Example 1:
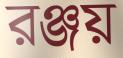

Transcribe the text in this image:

রঞ্জয়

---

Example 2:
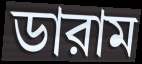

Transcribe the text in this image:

ডারাম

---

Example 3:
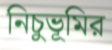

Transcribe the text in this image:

নিচুভূমির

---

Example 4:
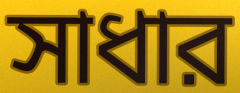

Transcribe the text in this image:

সাধার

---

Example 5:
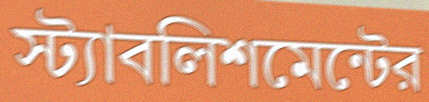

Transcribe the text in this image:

স্ট্যাবলিশমেন্টের